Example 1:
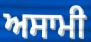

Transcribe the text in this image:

ਅਸਾਮੀ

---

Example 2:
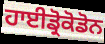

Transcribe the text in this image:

ਹਾਈਡ੍ਰੋਕੋਡੋਨ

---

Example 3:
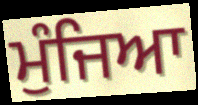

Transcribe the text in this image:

ਮੁੰਜਿਆ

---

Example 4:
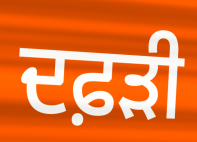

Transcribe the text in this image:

ਦਫ਼ੜੀ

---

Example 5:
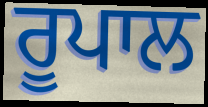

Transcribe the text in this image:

ਰੂਪਾਲ